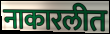
नाकारलीत